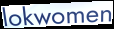
lokwomen